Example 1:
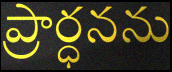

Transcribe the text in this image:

ప్రార్ధనను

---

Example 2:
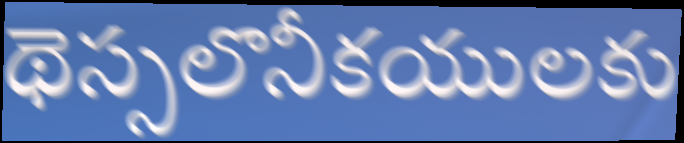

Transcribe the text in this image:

థెస్సలొనీకయులకు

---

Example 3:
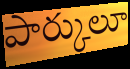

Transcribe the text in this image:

పార్కులూ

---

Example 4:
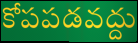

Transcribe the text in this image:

కోపపడవద్దు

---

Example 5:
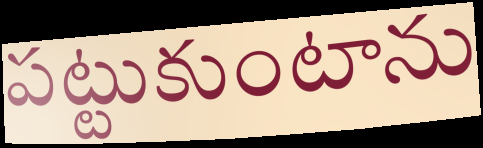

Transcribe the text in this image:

పట్టుకుంటాను